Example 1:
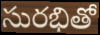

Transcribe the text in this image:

సురభితో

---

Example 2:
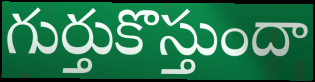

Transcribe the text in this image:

గుర్తుకొస్తుందా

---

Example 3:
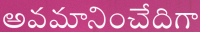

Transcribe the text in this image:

అవమానించేదిగా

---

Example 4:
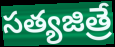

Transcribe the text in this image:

సత్యజిత్రే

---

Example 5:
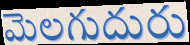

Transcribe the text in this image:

మెలగుదురు